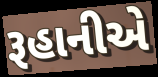
રૂહાનીએ